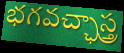
భగవచ్ఛాస్త్ర